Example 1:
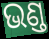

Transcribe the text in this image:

ଭଣ୍ଡ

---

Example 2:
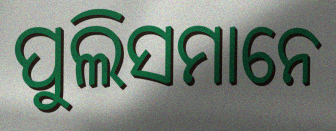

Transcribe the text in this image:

ପୁଲିସମାନେ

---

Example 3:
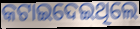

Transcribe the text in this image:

କଟାଇଦେଇଥିଲେ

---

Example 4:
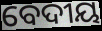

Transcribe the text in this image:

ବେଦୀୟ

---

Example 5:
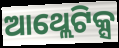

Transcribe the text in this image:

ଆଥ୍ଲେଟିକ୍ସ